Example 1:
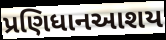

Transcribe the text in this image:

પ્રણિધાનઆશય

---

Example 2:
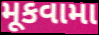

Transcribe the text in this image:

મૂકવામા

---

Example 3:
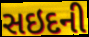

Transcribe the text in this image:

સઇદની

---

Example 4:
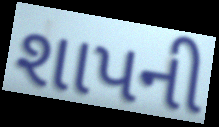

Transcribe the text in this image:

શાપની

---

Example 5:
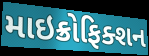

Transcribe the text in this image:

માઇક્રોફિક્શન